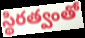
స్థిరత్వంతో